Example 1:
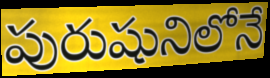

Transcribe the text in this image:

పురుషునిలోనే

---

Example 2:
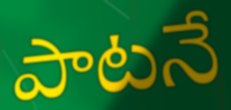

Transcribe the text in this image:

పాటనే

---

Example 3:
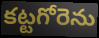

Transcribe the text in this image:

కట్టగోరెను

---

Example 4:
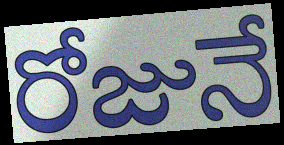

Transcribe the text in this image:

రోజునే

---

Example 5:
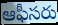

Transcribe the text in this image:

ఆఫీసరు